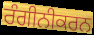
ਰੰਗੀਨੀਕਰਨ